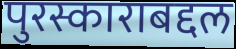
पुरस्काराबद्दल